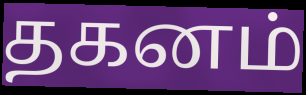
தகனம்